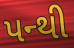
પન્થી